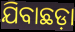
ଯିବାଛଡ଼ା